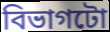
বিভাগটো